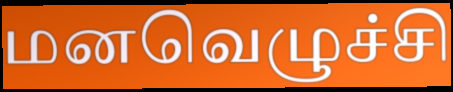
மனவெழுச்சி